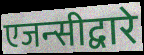
एजन्सीद्वारे